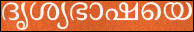
ദൃശ്യഭാഷയെ